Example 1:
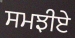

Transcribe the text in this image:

ਸਮਝੀਏ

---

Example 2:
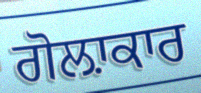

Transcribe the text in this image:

ਗੋਲ਼ਾਕਾਰ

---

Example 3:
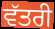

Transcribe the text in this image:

ਵੱਤਰੀ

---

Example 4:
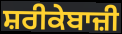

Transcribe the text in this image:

ਸ਼ਰੀਕੇਬਾਜ਼ੀ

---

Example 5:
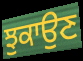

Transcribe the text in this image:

ਝੁਕਾਉਣ